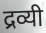
द्रव्यी